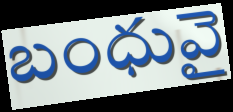
బంధువై